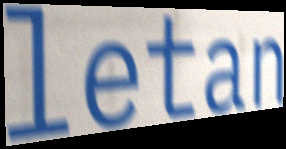
letan